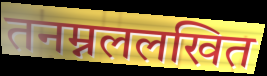
तनम्नललखित